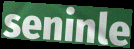
seninle